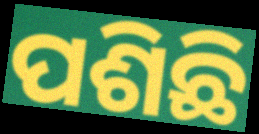
ପଶିଛି